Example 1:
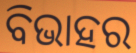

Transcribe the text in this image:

ବିଭାହର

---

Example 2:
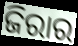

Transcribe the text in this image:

ଜିରାର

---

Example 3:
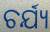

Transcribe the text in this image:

ଚର୍ଯ୍ୟ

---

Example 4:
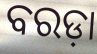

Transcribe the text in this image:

ବରଡ଼ା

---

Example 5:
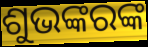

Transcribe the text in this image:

ଶୁଭଙ୍କରଙ୍କ